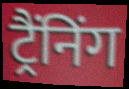
ट्रैंनिंग